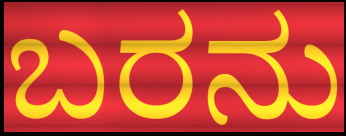
ಬರನು